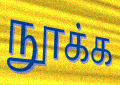
நூக்க